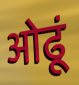
ओढूं